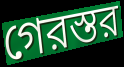
গেরস্তর